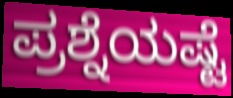
ಪ್ರಶ್ನೆಯಷ್ಟೆ